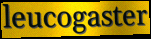
leucogaster